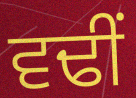
ਵਢੀਂ